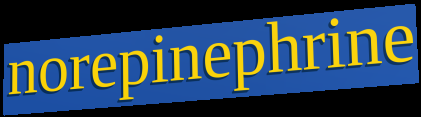
norepinephrine